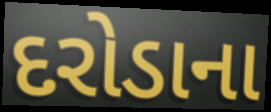
દરોડાના